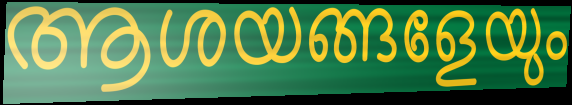
ആശയങ്ങളേയും